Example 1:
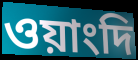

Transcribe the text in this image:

ওয়াংদি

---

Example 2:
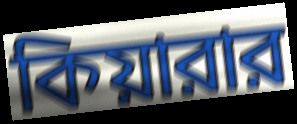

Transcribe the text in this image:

কিয়ারার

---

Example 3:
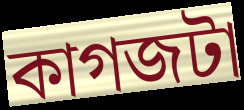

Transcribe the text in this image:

কাগজটা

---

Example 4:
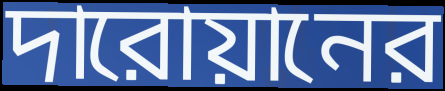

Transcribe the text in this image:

দারোয়ানের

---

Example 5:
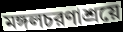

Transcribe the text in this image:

মঙ্গলচরণাশ্রয়ে